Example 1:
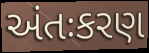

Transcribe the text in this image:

અંતઃકરણ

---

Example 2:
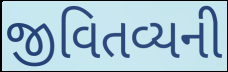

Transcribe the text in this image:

જીવિતવ્યની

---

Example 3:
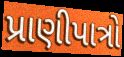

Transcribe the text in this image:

પ્રાણીપાત્રો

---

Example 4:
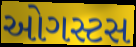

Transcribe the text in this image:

ઓગસ્ટસ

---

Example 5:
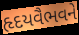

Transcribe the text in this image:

હૃદયવૈભવને